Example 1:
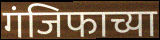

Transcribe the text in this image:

गंजिफाच्या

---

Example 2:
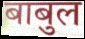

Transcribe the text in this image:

बाबुल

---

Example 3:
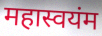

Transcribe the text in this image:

महास्वयंम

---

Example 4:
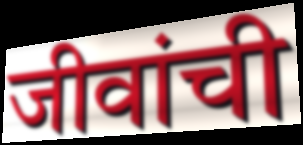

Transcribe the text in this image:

जीवांची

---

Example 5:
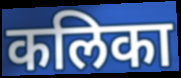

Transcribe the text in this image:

कलिका